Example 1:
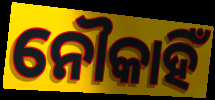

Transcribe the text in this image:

ନୌକାହିଁ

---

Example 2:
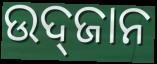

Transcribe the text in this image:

ଉଦ୍‌ଜାନ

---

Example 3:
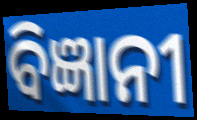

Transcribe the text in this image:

ବିଜ୍ଞାନୀ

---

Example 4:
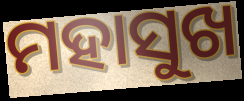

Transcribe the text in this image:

ମହାସୁଖ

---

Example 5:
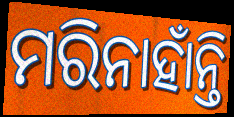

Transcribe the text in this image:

ମରିନାହାଁନ୍ତି